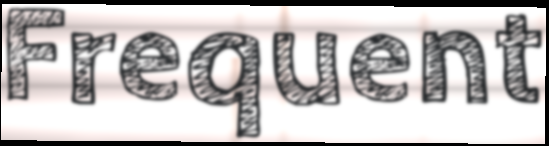
Frequent